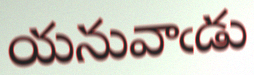
యనువాఁడు